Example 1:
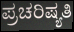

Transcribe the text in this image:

ಪ್ರಚರಿಷ್ಯತಿ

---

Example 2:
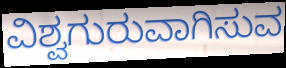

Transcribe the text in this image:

ವಿಶ್ವಗುರುವಾಗಿಸುವ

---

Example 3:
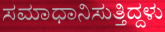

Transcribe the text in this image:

ಸಮಾಧಾನಿಸುತ್ತಿದ್ದಳು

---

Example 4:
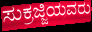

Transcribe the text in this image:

ಸುಕ್ರಜ್ಜಿಯವರು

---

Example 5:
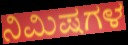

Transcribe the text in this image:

ನಿಮಿಷಗಳ